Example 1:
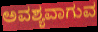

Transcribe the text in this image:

ಅವಶ್ಯವಾಗುವ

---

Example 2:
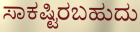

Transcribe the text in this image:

ಸಾಕಷ್ಟಿರಬಹುದು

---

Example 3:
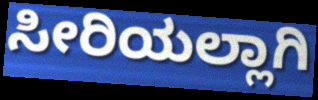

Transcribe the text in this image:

ಸೀರಿಯಲ್ಲಾಗಿ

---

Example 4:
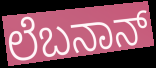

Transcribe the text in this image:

ಲೆಬನಾನ್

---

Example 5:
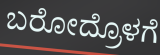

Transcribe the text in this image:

ಬರೋದ್ರೊಳಗೆ